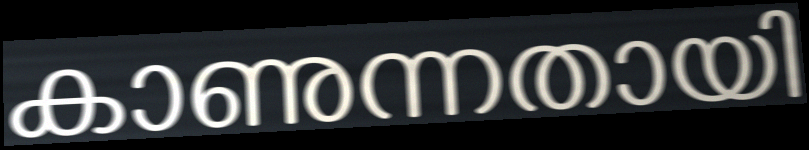
കാണുന്നതായി